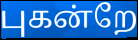
புகன்றே